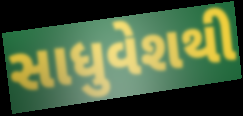
સાધુવેશથી